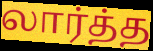
லார்த்த